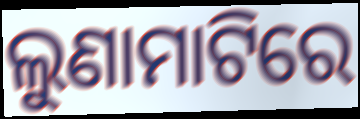
ଲୁଣାମାଟିରେ